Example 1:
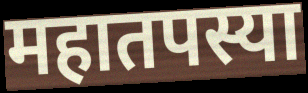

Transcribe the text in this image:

महातपस्या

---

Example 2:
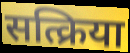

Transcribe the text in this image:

सत्क्रिया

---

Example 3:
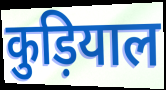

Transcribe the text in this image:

कुड़ियाल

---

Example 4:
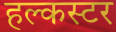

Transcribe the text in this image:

हल्कस्टर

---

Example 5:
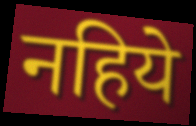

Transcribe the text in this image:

नहिये